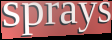
sprays